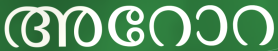
അറോറ